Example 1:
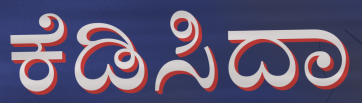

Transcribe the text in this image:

ಕೆಡಿಸಿದಾ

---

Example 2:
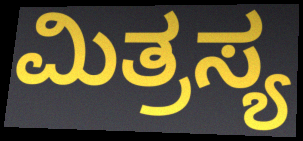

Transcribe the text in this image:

ಮಿತ್ರಸ್ಯ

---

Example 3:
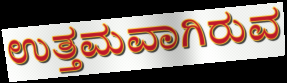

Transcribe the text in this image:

ಉತ್ತಮವಾಗಿರುವ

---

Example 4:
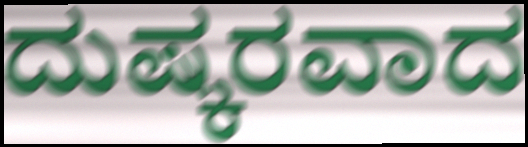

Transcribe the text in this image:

ದುಷ್ಕರವಾದ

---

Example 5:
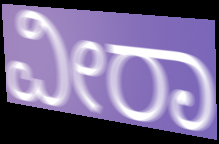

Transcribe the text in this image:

ವೀರಾ